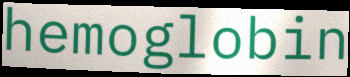
hemoglobin